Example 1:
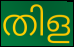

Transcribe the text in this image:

തിള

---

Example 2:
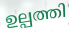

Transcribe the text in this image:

ഉല്പത്തി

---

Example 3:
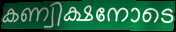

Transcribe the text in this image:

കണ്വിക്ഷനോടെ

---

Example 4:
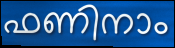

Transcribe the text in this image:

ഫണിനാം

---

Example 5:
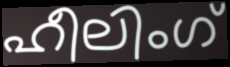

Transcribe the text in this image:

ഹീലിംഗ്